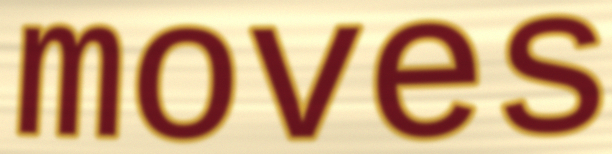
moves